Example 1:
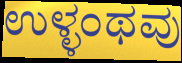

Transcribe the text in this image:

ಉಳ್ಳಂಥವು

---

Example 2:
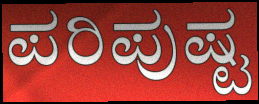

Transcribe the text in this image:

ಪರಿಪುಷ್ಟ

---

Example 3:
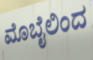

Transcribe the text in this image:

ಮೊಬೈಲಿಂದ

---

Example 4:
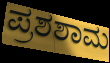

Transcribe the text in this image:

ಪ್ರಶಶಾಮ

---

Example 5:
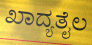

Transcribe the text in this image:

ಖಾದ್ಯತೈಲ